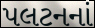
પલટનનાં